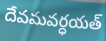
దేవమవర్ధయత్